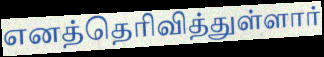
எனத்தெரிவித்துள்ளார்